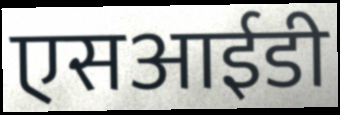
एसआईडी